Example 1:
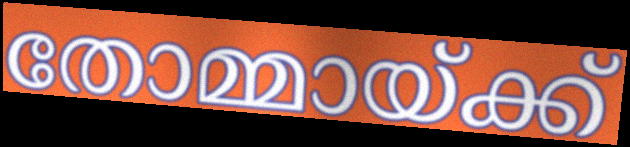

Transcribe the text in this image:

തോമ്മായ്ക്ക്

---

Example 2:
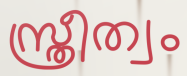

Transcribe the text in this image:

സ്ത്രീത്വം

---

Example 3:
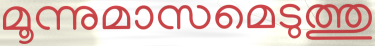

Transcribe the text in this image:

മൂന്നുമാസമെടുത്തു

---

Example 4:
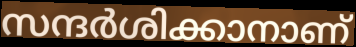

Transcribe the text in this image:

സന്ദർശിക്കാനാണ്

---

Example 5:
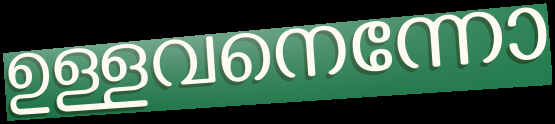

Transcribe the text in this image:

ഉള്ളവനെന്നോ